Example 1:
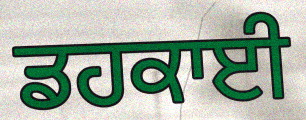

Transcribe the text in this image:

ਡਹਕਾਈ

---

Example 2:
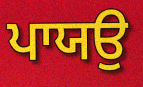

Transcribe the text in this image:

ਪਾਯਉ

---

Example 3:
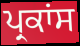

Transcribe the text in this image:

ਪ੍ਰਕਾਂਸ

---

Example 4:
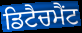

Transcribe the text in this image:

ਡਿਟੈਚਮੈਂਟ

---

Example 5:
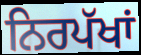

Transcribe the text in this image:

ਨਿਰਪੱਖਾਂ